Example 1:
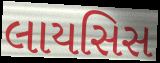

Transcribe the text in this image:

લાયસિસ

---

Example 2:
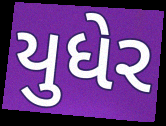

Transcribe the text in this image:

યુધેર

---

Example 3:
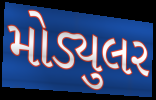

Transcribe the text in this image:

મોડ્યુલર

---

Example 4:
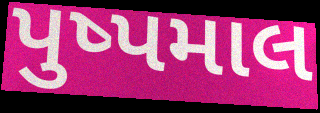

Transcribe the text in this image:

પુષ્પમાલ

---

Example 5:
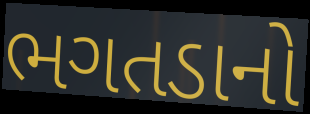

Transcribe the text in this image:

ભગતડાનો